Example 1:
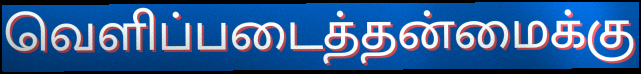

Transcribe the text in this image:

வெளிப்படைத்தன்மைக்கு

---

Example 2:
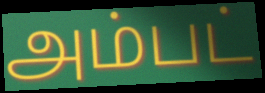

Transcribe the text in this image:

அம்பட்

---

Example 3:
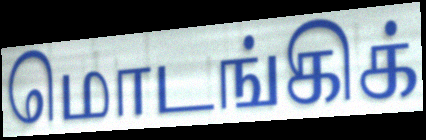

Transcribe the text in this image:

மொடங்கிக்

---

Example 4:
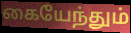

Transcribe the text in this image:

கையேந்தும்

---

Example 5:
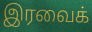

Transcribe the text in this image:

இரவைக்